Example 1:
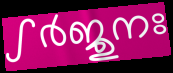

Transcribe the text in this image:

ഽർജുനഃ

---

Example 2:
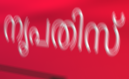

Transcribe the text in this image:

നൃപതിസ്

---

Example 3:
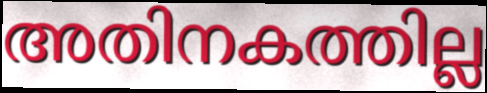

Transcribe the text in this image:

അതിനകത്തില്ല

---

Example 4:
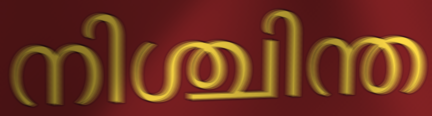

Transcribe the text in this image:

നിശ്ചിന്ത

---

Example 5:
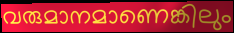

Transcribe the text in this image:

വരുമാനമാണെങ്കിലും